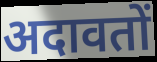
अदावतों